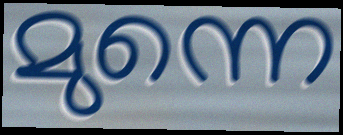
മുന്നെ